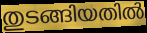
തുടങ്ങിയതിൽ